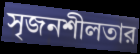
সৃজনশীলতার